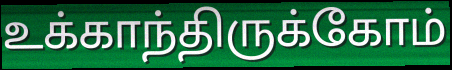
உக்காந்திருக்கோம்